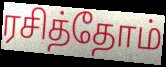
ரசித்தோம்